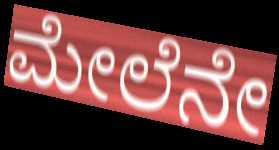
ಮೇಲೆನೇ